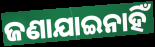
ଜଣାଯାଇନାହିଁ